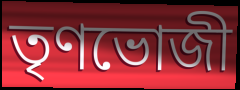
তৃণভোজী